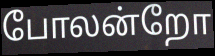
போலன்றோ